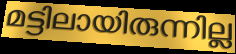
മട്ടിലായിരുന്നില്ല